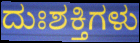
ದುಃಶಕ್ತಿಗಳು